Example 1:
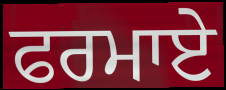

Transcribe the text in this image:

ਫਰਮਾਏ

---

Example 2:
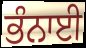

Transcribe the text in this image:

ਭੰਨਾਈ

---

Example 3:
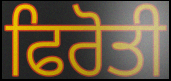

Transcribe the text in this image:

ਫਿਰੋਤੀ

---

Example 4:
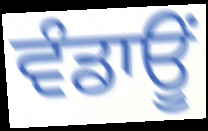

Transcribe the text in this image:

ਵੰਡਾਊਂ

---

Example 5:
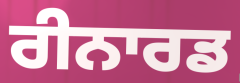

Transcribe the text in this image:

ਰੀਨਾਰਡ